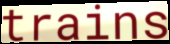
trains